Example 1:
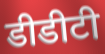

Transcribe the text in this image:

डीडीटी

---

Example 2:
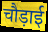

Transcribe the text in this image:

चौड़ाई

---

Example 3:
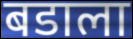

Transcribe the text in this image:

बडाला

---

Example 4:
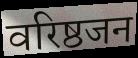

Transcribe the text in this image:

वरिष्ठजन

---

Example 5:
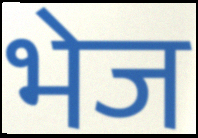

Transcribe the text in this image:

भेज